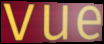
vue